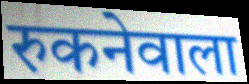
रुकनेवाला